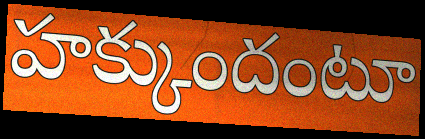
హక్కుందంటూ